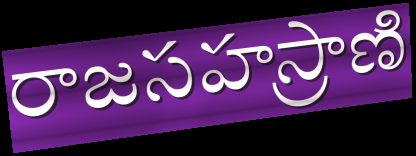
రాజసహస్రాణి